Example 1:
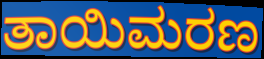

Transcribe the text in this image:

ತಾಯಿಮರಣ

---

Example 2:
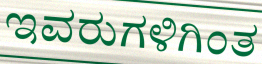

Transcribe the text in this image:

ಇವರುಗಳಿಗಿಂತ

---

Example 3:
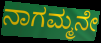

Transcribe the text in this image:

ನಾಗಮ್ಮನೇ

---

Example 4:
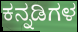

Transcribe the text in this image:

ಕನ್ನಡಿಗಳ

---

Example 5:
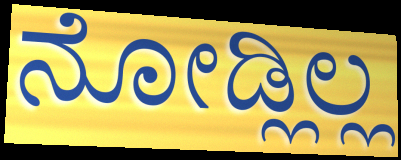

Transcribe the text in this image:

ನೋಡ್ಲಿಲ್ಲ